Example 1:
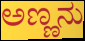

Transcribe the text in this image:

ಅಣ್ಣನು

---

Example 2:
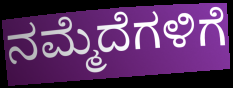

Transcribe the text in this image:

ನಮ್ಮೆದೆಗಳಿಗೆ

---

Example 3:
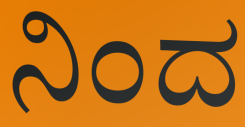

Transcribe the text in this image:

ನಿಂದ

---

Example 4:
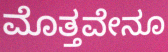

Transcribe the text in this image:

ಮೊತ್ತವೇನೂ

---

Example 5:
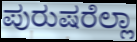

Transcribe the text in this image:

ಪುರುಷರೆಲ್ಲಾ